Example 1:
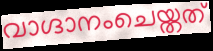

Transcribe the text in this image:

വാഗ്ദാനംചെയ്തത്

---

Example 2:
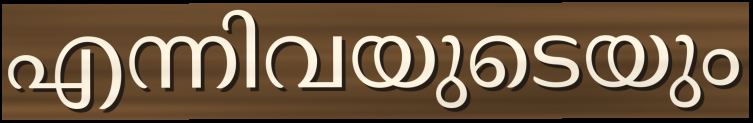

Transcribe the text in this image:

എന്നിവയുടെയും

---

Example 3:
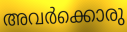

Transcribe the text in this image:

അവർക്കൊരു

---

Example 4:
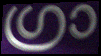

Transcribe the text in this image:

ഗ്രാ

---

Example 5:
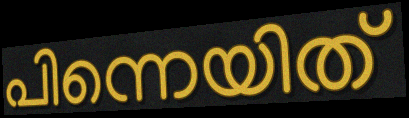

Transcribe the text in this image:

പിന്നെയിത്